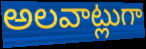
అలవాట్లుగా